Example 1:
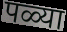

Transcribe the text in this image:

पळ्या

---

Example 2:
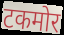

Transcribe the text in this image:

टकमोर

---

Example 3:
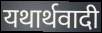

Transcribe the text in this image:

यथार्थवादी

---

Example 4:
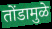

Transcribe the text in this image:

तोंडामुळे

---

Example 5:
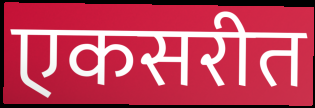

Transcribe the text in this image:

एकसरीत